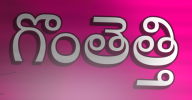
గొంతెత్తి